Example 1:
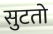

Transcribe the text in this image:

सुटतो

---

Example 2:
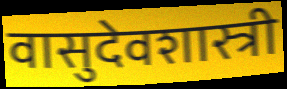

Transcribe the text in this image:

वासुदेवशास्त्री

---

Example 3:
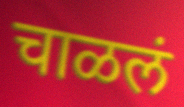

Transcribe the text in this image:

चाळलं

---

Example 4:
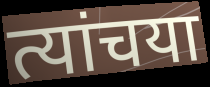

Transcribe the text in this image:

त्यांचया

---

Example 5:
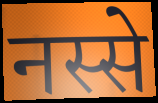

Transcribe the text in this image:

नस्से